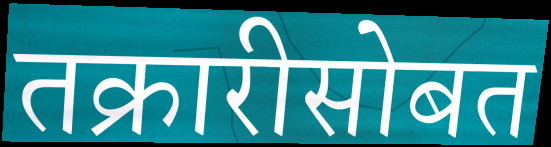
तक्रारीसोबत